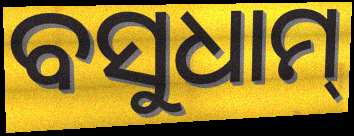
ବସୁଧାମ୍